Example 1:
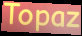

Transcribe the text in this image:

Topaz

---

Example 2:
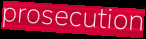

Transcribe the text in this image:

prosecution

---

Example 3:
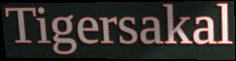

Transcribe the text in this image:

Tigersakal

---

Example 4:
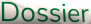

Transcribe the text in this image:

Dossier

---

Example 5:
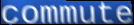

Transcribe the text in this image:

commute